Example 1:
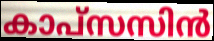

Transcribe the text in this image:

കാപ്സസിൻ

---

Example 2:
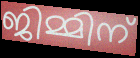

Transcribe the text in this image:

ജിമ്മിന്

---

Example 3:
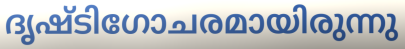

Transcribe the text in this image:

ദൃഷ്ടിഗോചരമായിരുന്നു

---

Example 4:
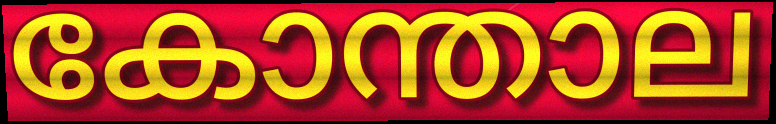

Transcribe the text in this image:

കോന്താല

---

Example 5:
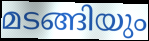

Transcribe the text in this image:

മടങ്ങിയും